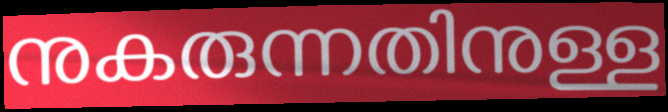
നുകരുന്നതിനുള്ള